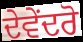
ਦੇਵੇਂਦਰੋ